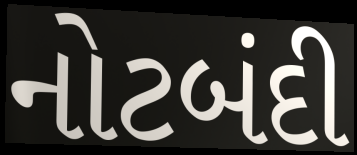
નોટબંદી